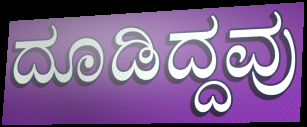
ದೂಡಿದ್ದವು